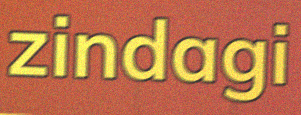
zindagi